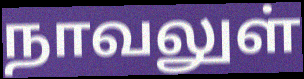
நாவலுள்